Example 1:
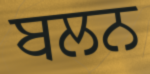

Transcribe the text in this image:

ਬਲਨ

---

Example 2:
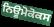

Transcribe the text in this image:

ਨਿਊਮੋਕੋਕਸ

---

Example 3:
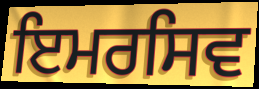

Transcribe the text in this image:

ਇਮਰਸਿਵ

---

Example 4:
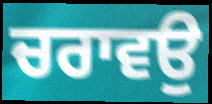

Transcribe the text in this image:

ਚਰਾਵਉ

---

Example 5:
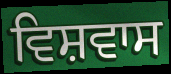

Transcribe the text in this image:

ਵਿਸ਼ਵਾਸ